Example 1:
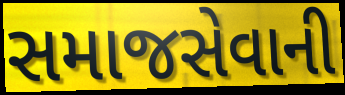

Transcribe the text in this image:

સમાજસેવાની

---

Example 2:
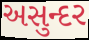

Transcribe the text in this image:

અસુન્દર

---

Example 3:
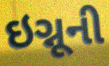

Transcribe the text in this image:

ઇગ્નૂની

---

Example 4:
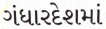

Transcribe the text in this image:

ગંધારદેશમાં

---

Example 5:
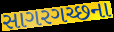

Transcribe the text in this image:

સાગરગચ્છના